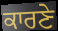
ਕਾਰਣੇ